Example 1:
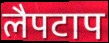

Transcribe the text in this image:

लैपटाप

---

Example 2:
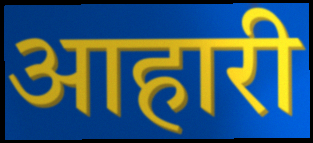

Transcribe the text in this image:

आहारी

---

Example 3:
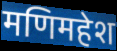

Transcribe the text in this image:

मणिमहेश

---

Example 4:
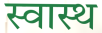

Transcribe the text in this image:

स्‍वास्‍थ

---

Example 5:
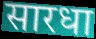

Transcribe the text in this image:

सारधा